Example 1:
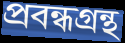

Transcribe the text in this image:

প্ৰবন্ধগ্ৰন্থ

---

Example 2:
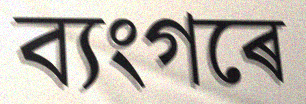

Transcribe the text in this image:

ব্যংগৰে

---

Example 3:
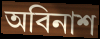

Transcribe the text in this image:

অবিনাশ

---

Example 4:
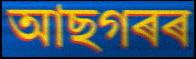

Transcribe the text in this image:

আছগৰৰ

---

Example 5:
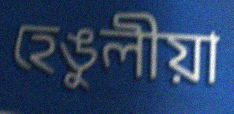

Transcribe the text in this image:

হেঙুলীয়া